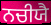
ਨਚੀਯੈ